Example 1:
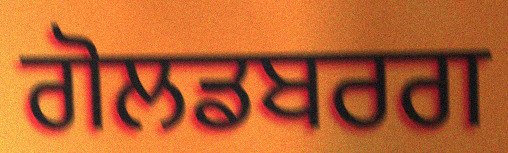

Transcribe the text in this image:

ਗੋਲਡਬਰਗ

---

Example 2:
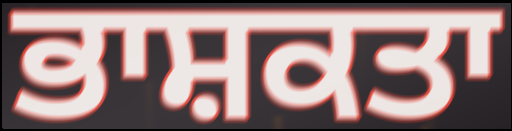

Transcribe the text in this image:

ਭਾਸ਼ਕਤਾ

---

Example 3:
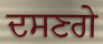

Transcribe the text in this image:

ਦਸਣਗੇ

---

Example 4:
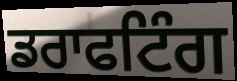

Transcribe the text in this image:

ਡਰਾਫਟਿੰਗ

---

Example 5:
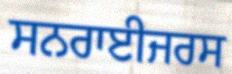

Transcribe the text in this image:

ਸਨਰਾਈਜਰਸ